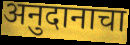
अनुदानाचा